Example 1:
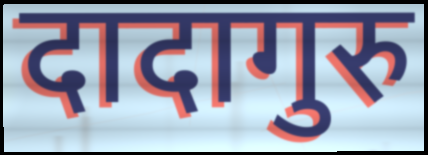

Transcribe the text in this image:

दादागुरु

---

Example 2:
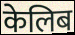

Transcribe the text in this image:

केलिब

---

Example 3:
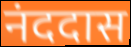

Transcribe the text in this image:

नंददास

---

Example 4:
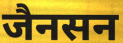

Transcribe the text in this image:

जैनसन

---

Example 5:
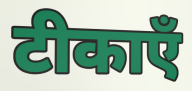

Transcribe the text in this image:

टीकाएँ